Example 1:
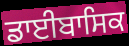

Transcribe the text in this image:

ਡਾਈਬਾਸਿਕ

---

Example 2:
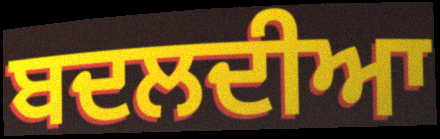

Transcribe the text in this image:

ਬਦਲਦੀਆ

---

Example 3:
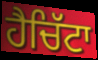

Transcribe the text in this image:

ਹੈਚਿੱਟਾ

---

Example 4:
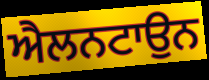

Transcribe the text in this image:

ਐਲਨਟਾਉਨ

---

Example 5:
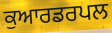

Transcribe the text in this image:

ਕੁਆਰਡਰਪਲ